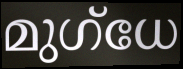
മുഗ്ധേ